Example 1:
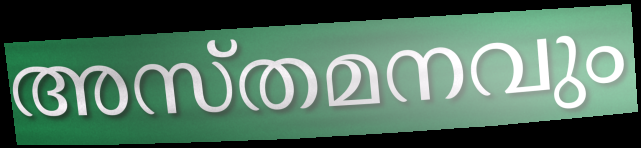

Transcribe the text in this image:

അസ്തമനവും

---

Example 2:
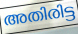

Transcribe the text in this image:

അതിരിട്ട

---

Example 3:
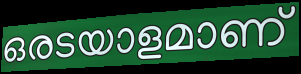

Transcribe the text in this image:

ഒരടയാളമാണ്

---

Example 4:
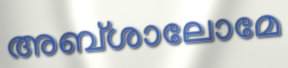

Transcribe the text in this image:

അബ്ശാലോമേ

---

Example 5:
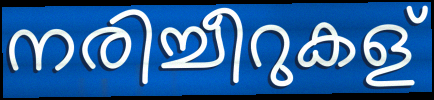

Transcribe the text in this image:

നരിച്ചീറുകള്